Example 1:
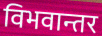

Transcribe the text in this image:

विभवान्तर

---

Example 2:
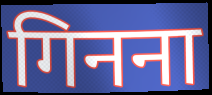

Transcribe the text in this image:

गिनना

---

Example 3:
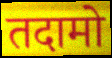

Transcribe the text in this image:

तदामो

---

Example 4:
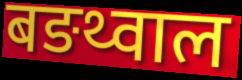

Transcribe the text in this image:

बङथ्वाल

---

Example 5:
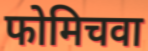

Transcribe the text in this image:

फोमिचवा